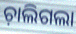
ଚ଼ାଲିଗଲା